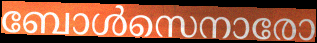
ബോൾസെനാരോ